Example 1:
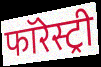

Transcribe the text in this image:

फॉरेस्ट्री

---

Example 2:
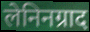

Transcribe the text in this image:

लेनिनग्राद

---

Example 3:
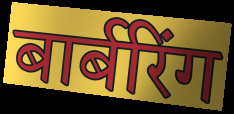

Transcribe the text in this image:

बार्बरिंग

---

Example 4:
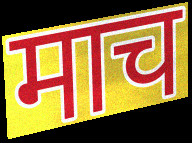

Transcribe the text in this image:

माच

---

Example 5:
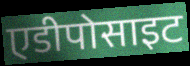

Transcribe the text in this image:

एडीपोसाइट